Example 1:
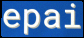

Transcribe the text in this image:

epai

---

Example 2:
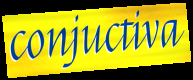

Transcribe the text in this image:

conjuctiva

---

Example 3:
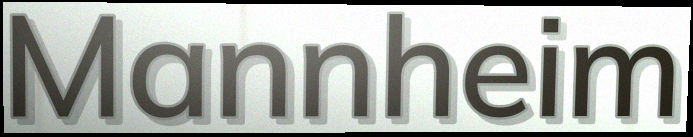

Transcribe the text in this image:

Mannheim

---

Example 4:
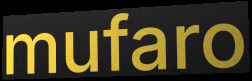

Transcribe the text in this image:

mufaro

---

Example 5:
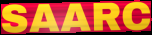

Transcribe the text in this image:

SAARC